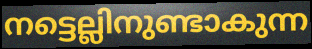
നട്ടെല്ലിനുണ്ടാകുന്ന